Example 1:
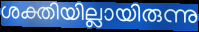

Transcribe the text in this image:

ശക്തിയില്ലായിരുന്നു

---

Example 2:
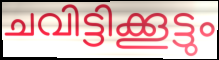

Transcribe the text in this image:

ചവിട്ടിക്കൂട്ടും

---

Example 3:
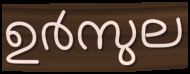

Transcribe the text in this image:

ഉർസുല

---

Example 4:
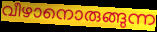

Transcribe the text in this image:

വീഴാനൊരുങ്ങുന്ന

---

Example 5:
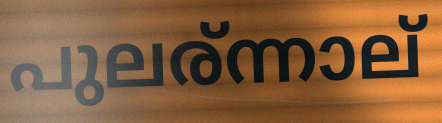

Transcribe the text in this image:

പുലര്ന്നാല്